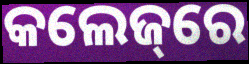
କଲେଜ୍‌ରେ